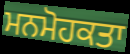
ਮਨਮੋਹਕਤਾ